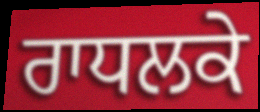
ਰਾਧਲਕੇ